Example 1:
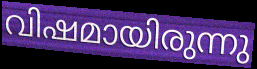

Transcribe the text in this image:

വിഷമായിരുന്നു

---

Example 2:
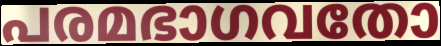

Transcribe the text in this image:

പരമഭാഗവതോ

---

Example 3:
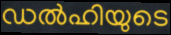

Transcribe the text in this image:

ഡൽഹിയുടെ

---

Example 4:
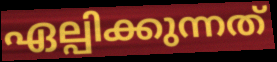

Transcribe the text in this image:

ഏല്പിക്കുന്നത്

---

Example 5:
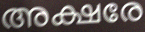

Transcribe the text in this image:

അക്ഷരേ